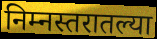
निम्नस्तरातल्या